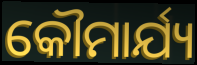
କୌମାର୍ଯ୍ୟ